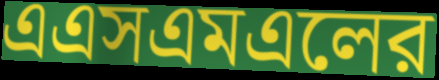
এএসএমএলের